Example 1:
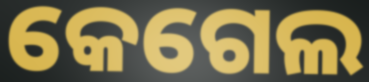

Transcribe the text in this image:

କେଗେଲ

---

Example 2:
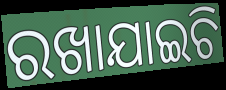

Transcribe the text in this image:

ରଖାଯାଇଚି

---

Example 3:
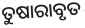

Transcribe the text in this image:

ତୁଷାରାବୃତ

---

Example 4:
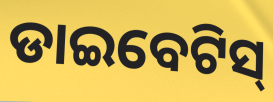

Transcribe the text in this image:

ଡାଇବେଟିସ୍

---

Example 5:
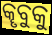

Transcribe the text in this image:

କୄବୁକୁ